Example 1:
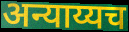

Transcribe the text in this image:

अन्याय्यच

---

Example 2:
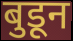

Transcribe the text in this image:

बुडून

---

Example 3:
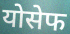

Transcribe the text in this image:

योसेफ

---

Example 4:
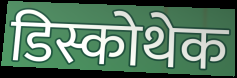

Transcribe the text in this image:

डिस्कोथेक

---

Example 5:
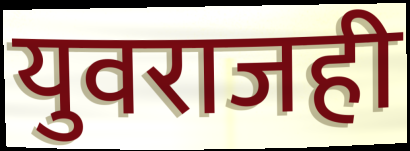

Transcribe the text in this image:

युवराजही